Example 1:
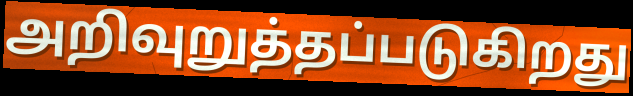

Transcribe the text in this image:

அறிவுறுத்தப்படுகிறது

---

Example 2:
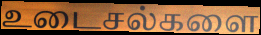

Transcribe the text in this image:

உடைசல்களை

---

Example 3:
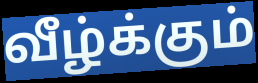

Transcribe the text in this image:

வீழ்க்கும்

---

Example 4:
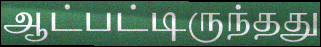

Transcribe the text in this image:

ஆட்பட்டிருந்தது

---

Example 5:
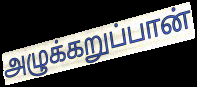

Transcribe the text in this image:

அழுக்கறுப்பான்